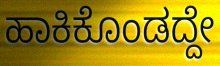
ಹಾಕಿಕೊಂಡದ್ದೇ